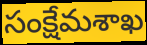
సంక్షేమశాఖ